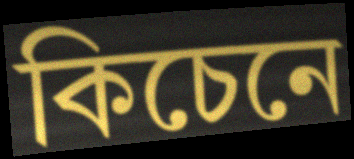
কিচেনে